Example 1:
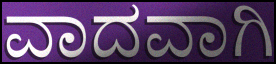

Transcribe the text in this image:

ವಾದವಾಗಿ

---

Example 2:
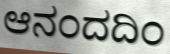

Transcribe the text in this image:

ಆನಂದದಿಂ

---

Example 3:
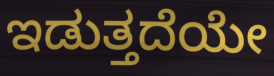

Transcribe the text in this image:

ಇಡುತ್ತದೆಯೇ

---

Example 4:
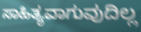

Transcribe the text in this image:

ಸಾಹಿತ್ಯವಾಗುವುದಿಲ್ಲ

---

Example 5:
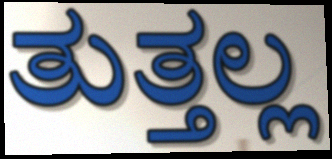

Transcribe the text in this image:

ತುತ್ತಲ್ಲ